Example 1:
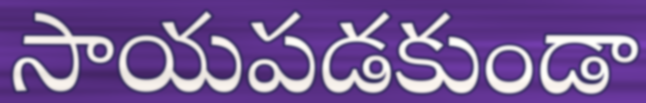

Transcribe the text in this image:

సాయపడకుండా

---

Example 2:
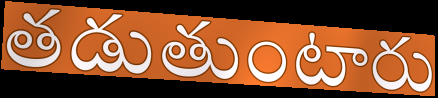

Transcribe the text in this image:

తడుతుంటారు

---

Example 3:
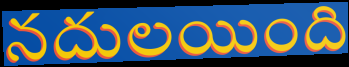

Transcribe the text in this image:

నదులయింది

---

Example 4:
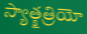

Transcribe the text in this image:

స్యాత్క్షత్రియో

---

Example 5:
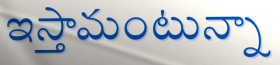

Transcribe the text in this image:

ఇస్తామంటున్నా